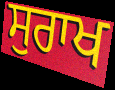
ਸੁਰਾਖ